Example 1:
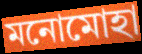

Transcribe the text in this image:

মনোমোহা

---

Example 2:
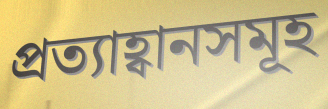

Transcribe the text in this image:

প্ৰত্যাহ্বানসমূহ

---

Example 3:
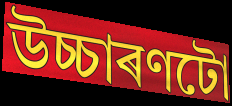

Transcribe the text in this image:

উচ্চাৰণটো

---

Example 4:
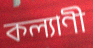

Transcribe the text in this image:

কল্যাণী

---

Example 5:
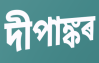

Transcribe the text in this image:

দীপাঙ্কৰ